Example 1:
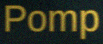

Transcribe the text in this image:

Pomp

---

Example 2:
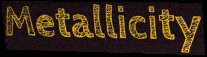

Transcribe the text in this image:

Metallicity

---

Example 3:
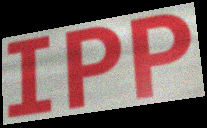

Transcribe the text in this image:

IPP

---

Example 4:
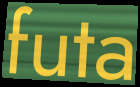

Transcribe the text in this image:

futa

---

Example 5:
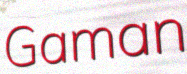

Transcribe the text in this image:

Gaman